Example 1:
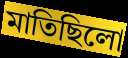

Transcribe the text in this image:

মাতিছিলো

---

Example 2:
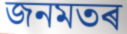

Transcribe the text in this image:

জনমতৰ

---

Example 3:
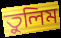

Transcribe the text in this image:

তুলিম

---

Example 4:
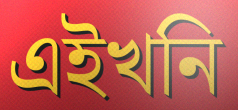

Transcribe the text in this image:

এইখনি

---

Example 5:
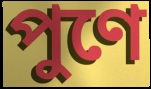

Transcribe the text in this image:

পুণে